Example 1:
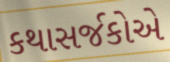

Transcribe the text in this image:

કથાસર્જકોએ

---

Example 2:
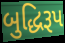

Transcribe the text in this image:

બુદ્ધિરૂપ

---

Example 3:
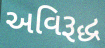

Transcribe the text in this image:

અવિરૂદ્ધ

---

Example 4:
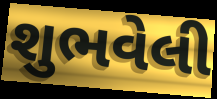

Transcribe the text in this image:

શુભવેલી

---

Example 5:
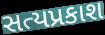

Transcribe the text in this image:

સત્યપ્રકાશ